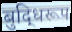
बुद्धिरूप